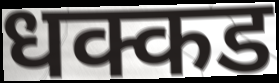
धक्कड